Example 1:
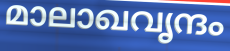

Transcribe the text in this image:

മാലാഖവൃന്ദം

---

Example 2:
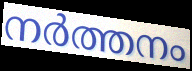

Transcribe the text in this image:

നർത്തനം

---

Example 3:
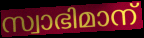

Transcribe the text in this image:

സ്വാഭിമാന്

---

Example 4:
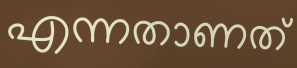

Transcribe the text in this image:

എന്നതാണത്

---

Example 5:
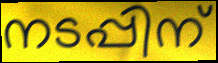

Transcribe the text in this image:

നടപ്പിന്